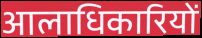
आलाधिकारियों